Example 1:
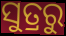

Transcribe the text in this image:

ସୁତ୍ରରୁ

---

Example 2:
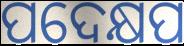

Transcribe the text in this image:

ପଦେକ୍ଷପ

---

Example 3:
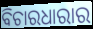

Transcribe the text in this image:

ବିଚାରଧାରାର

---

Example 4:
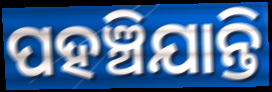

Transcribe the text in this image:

ପହଞ୍ଚିଯାନ୍ତି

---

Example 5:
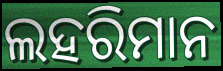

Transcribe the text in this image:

ଲହରିମାନ